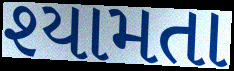
શ્યામતા